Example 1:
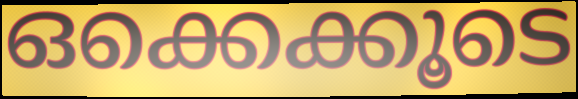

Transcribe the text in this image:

ഒക്കെക്കൂടെ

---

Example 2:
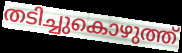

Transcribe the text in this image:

തടിച്ചുകൊഴുത്ത്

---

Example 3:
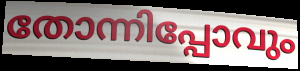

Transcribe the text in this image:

തോന്നിപ്പോവും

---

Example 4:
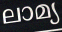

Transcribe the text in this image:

ലാമ്യ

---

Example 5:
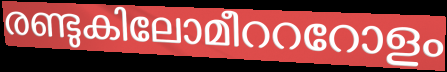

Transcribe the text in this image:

രണ്ടുകിലോമീറററോളം